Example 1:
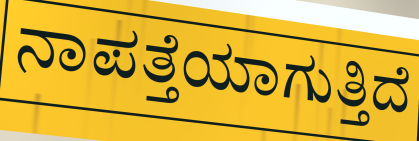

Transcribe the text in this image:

ನಾಪತ್ತೆಯಾಗುತ್ತಿದೆ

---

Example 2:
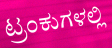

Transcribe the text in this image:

ಟ್ರಂಕುಗಳಲ್ಲಿ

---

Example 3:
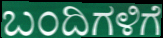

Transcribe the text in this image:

ಬಂದಿಗಳಿಗೆ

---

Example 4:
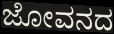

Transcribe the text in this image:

ಜೋವನದ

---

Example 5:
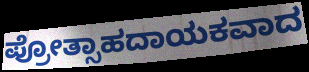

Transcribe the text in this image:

ಪ್ರೋತ್ಸಾಹದಾಯಕವಾದ